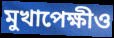
মুখাপেক্ষীও